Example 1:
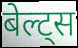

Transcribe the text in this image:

बेल्ट्स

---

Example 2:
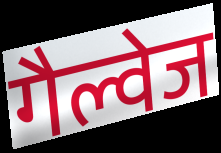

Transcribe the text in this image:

गैल्वेज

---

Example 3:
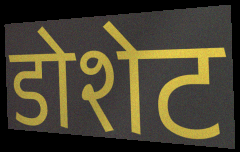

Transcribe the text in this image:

डोशेट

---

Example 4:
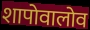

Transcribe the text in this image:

शापोवालोव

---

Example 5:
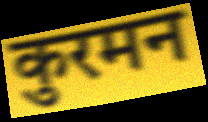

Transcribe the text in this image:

कुरमन